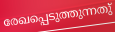
രേഖപ്പെടുത്തുന്നതു്